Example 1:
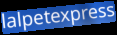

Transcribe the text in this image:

lalpetexpress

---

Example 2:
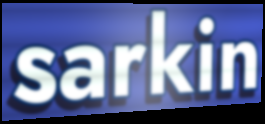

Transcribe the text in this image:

sarkin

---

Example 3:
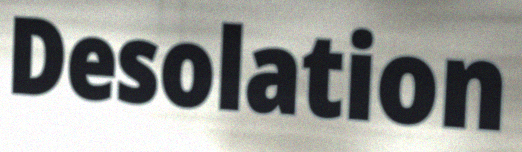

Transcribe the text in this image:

Desolation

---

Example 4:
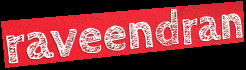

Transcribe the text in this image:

raveendran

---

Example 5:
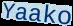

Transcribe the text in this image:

Yaako